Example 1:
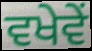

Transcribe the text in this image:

ਵਖੇਵੇਂ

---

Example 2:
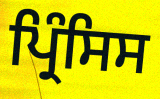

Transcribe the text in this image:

ਪ੍ਰਿੰਸਿਸ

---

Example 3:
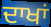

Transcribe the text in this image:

ਦਾਖਾਂ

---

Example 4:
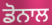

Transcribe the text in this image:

ਡੋਨਾਲ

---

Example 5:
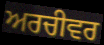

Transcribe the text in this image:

ਅਰਚੀਵਰ